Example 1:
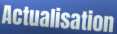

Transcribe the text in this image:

Actualisation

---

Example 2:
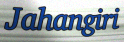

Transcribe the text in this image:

Jahangiri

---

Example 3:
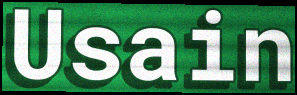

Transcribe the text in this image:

Usain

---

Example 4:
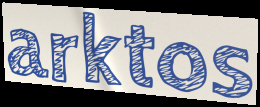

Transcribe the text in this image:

arktos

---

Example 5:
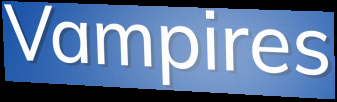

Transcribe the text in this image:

Vampires